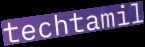
techtamil